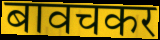
बावचकर